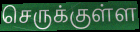
செருக்குள்ள